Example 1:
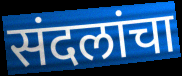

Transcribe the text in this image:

संदलांचा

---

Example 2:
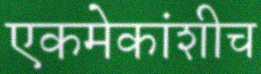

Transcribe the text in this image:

एकमेकांशीच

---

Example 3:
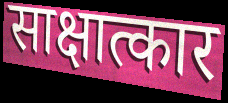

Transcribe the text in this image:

साक्षात्कार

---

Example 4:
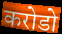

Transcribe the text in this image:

करोडो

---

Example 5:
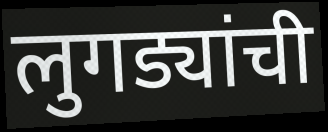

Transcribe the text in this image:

लुगड्यांची